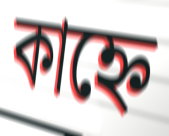
কাহ্নে